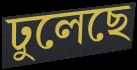
ঢুলেছে